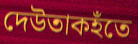
দেউতাকহঁতে